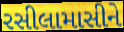
રસીલામાસીને